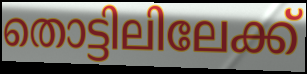
തൊട്ടിലിലേക്ക്